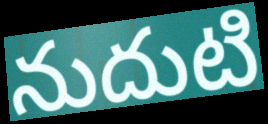
నుదుటి